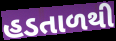
હડતાળથી